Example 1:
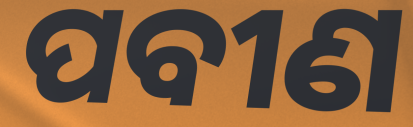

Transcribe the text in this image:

ପବୀଣ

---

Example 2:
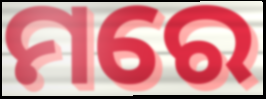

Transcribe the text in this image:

ମରେ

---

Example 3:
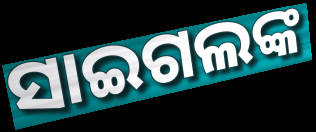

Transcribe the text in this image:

ସାଇଗଲଙ୍କ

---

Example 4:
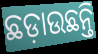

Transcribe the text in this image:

ଛଡ଼ାଉଛନ୍ତି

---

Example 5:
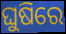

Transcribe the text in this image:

ଘୁଷିରେ